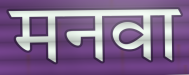
मनवा